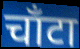
चाँटा